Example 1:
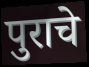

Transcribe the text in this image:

पुराचे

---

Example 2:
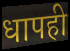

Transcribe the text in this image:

धापही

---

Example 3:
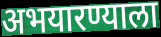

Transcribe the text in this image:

अभयारण्याला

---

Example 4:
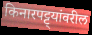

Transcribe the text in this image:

किनारपट्ट्यांवरील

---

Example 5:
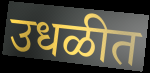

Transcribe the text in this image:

उधळीत